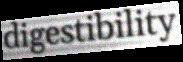
digestibility